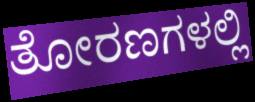
ತೋರಣಗಳಲ್ಲಿ